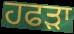
ਹਫੜਾ